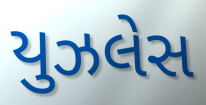
યુઝલેસ